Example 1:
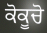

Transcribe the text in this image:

ਕੋਕੂਚੋ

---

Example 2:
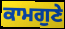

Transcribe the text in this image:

ਕਾਮਗੁਣੇ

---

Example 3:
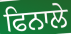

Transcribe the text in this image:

ਫਿਨਾਲੇ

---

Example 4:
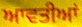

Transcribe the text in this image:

ਆਵਤੀਆਂ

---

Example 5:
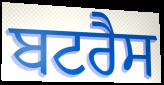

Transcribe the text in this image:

ਬਟਰੈਸ